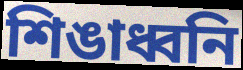
শিঙাধ্বনি